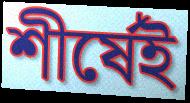
শীর্ষেই